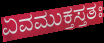
ಏವಮುಕ್ತಸ್ತತಃ